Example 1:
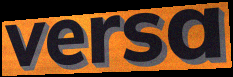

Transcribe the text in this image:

versa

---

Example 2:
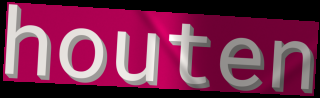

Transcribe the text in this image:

houten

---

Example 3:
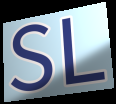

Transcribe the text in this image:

SL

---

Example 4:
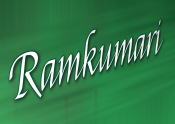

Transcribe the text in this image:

Ramkumari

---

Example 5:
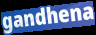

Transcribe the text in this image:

gandhena